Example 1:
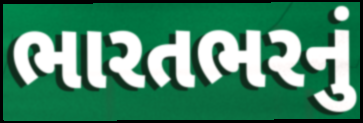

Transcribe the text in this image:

ભારતભરનું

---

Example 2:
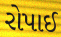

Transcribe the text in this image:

રોપાઈ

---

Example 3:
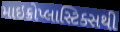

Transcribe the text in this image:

માઇક્રોપ્લાસ્ટિક્સથી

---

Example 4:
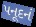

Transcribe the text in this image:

પનૂદનં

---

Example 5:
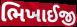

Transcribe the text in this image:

ભિખાઈજી